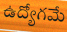
ఉద్యోగమే